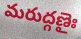
మరుద్గణైః